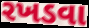
રખડવા